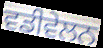
ਵਡੀਵੇਲਨ